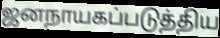
ஜனநாயகப்படுத்திய